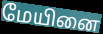
மேயினை